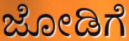
ಜೋಡಿಗೆ